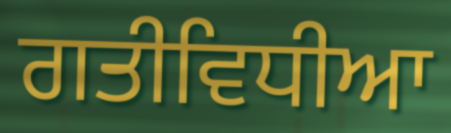
ਗਤੀਵਿਧੀਆ